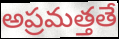
అప్రమత్తతే